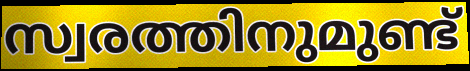
സ്വരത്തിനുമുണ്ട്